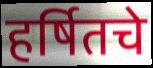
हर्षितचे